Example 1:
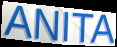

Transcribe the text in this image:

ANITA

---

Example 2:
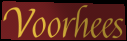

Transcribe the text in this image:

Voorhees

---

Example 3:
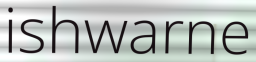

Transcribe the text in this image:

ishwarne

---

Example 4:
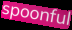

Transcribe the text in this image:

spoonful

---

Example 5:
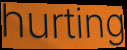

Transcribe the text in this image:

hurting